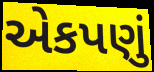
એકપણું